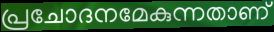
പ്രചോദനമേകുന്നതാണ്